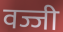
वज्जी